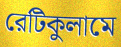
রেটিকুলামে